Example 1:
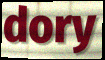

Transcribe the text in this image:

dory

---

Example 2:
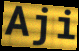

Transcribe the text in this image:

Aji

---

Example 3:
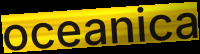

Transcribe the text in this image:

oceanica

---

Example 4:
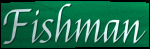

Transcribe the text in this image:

Fishman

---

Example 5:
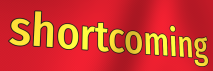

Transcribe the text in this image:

shortcoming